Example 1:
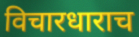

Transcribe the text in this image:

विचारधाराच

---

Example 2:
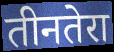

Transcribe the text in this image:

तीनतेरा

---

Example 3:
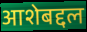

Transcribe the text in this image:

आशेबद्दल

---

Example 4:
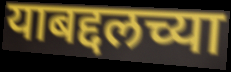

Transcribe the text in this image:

याबद्दलच्या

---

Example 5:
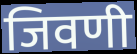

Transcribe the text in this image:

जिवणी